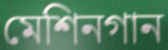
মেশিনগান